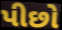
પીછો